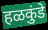
हळकुंडे